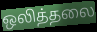
ஒலித்தலை